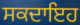
ਸਕਦਾਇਹ